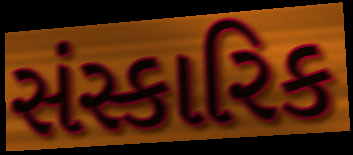
સંસ્કારિક